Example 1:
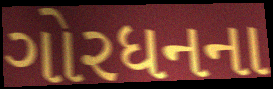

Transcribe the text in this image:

ગોરધનના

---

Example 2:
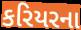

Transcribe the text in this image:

કરિયરના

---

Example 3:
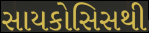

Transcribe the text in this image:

સાયકોસિસથી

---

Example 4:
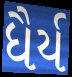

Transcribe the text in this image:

ધૈર્ય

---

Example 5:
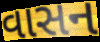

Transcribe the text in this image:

વાસન